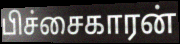
பிச்சைகாரன்